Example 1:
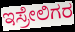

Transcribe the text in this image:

ಇಸ್ರೇಲಿಗರ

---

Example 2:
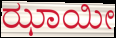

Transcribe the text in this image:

ಝಾಯೀ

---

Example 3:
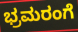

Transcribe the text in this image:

ಭ್ರಮರಂಗೆ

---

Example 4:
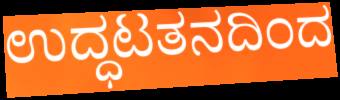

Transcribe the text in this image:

ಉದ್ಧಟತನದಿಂದ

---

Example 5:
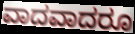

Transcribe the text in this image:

ವಾದವಾದರೂ